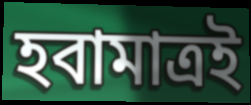
হবামাত্রই